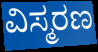
ವಿಸ್ಮರಣ